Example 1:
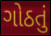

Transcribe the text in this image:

ગોઠતું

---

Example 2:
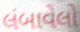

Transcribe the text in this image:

લંબાવેલો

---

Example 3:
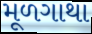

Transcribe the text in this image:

મૂળગાથા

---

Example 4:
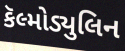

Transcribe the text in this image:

કૅલ્મોડ્યુલિન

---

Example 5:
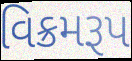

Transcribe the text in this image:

વિક્રમરૂપ